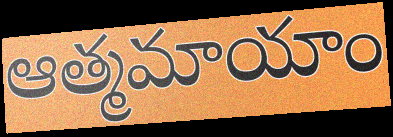
ఆత్మమాయాం